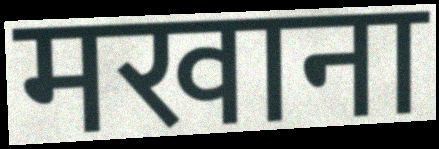
मखाना